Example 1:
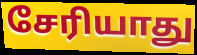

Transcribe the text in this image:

சேரியாது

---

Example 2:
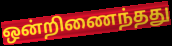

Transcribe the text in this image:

ஒன்றிணைந்தது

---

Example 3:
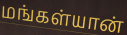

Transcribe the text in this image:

மங்கள்யான்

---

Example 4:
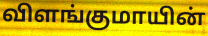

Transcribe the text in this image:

விளங்குமாயின்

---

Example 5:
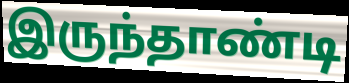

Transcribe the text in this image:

இருந்தாண்டி